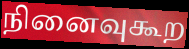
நினைவுகூற